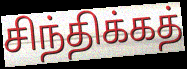
சிந்திக்கத்